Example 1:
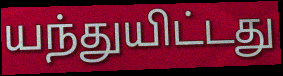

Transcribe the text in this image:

யந்துயிட்டது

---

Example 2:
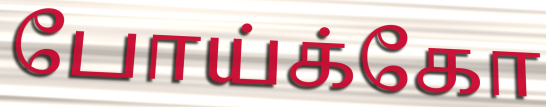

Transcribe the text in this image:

போய்க்கோ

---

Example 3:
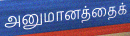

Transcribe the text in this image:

அனுமானத்தைக்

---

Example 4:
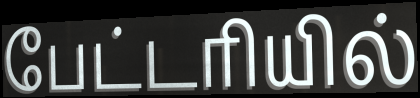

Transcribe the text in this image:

பேட்டரியில்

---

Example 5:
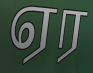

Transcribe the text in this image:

ஏர